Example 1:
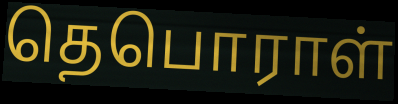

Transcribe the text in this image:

தெபொராள்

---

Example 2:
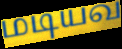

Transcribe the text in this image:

மடியவ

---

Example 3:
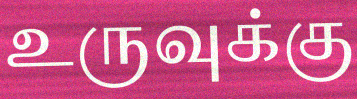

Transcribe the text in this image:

உருவுக்கு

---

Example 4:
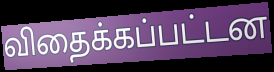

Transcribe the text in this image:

விதைக்கப்பட்டன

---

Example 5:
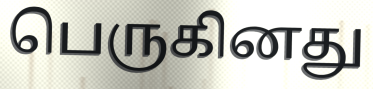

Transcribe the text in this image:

பெருகினது